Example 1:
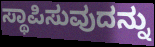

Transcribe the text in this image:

ಸ್ಥಾಪಿಸುವುದನ್ನು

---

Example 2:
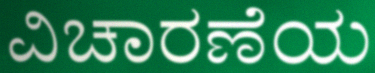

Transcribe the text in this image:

ವಿಚಾರಣೆಯ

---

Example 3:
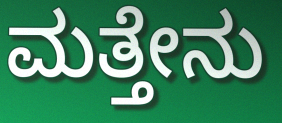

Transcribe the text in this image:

ಮತ್ತೇನು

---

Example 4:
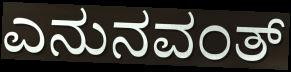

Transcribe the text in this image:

ಎನುನವಂತ್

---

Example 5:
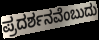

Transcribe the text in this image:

ಪ್ರದರ್ಶನವೆಂಬುದು